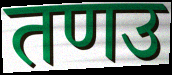
तणउ